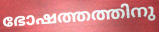
ഭോഷത്തത്തിനു